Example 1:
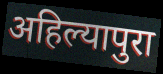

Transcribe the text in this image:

अहिल्यापुरा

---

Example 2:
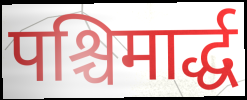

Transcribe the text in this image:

पश्चिमार्द्ध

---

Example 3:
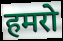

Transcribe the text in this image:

हमरो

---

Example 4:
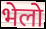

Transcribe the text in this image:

भेलो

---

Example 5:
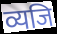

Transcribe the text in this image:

व्यजि